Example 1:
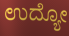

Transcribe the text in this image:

ಉದ್ಯೋ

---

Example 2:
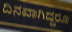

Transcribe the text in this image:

ದಿನವಾಗಿದ್ದರೂ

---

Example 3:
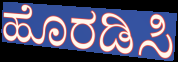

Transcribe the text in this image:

ಹೊರಡಿಸಿ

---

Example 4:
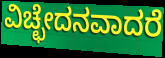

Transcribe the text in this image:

ವಿಚ್ಛೇದನವಾದರೆ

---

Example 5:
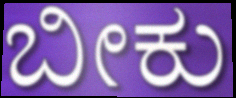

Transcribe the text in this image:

ಬೀಕು